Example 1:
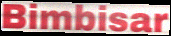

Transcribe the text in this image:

Bimbisar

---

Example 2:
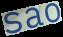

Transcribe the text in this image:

sao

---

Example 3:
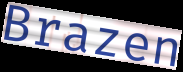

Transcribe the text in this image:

Brazen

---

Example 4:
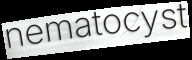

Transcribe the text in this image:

nematocyst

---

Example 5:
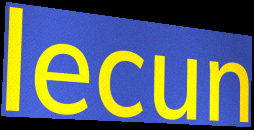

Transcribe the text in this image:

lecun